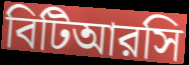
বিটিআরসি